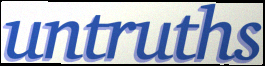
untruths